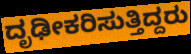
ದೃಢೀಕರಿಸುತ್ತಿದ್ದರು